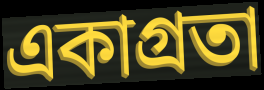
একাগ্ৰতা